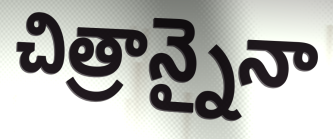
చిత్రాన్నైనా